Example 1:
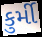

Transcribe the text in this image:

કુર્મી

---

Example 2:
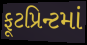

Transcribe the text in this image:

ફૂટપ્રિન્ટમાં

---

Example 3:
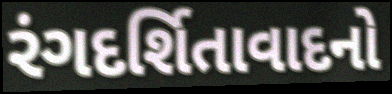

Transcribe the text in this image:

રંગદર્શિતાવાદનો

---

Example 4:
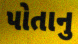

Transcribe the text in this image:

પોતાનુ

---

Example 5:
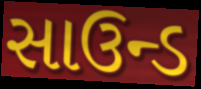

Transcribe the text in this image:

સાઉન્ડ